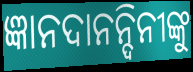
ଜ୍ଞାନଦାନନ୍ଦିନୀଙ୍କୁ